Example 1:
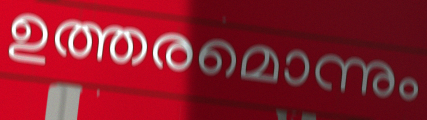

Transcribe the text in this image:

ഉത്തരമൊന്നും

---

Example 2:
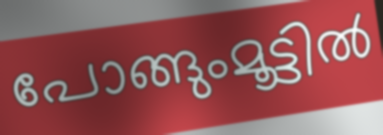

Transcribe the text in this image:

പോങ്ങുംമൂട്ടിൽ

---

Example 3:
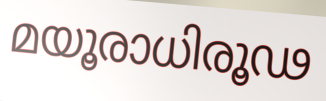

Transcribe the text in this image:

മയൂരാധിരൂഢ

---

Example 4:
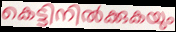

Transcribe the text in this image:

കെട്ടിനിൽക്കുകയും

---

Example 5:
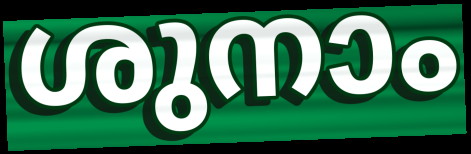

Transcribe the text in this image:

ശുനാം